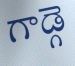
గాడ్గె